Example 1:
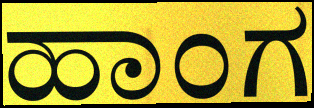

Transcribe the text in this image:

ಹಾಂಗ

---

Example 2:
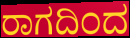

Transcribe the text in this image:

ರಾಗದಿಂದ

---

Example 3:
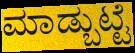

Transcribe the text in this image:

ಮಾಡ್ಬುಟ್ಟೆ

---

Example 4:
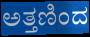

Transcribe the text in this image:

ಅತ್ತಣಿಂದ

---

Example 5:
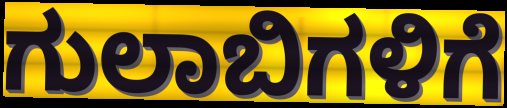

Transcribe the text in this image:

ಗುಲಾಬಿಗಳಿಗೆ